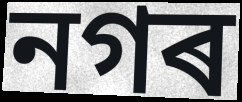
নগৰ